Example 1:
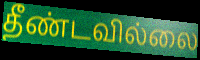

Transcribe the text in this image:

தீண்டவில்லை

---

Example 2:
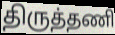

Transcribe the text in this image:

திருத்தணி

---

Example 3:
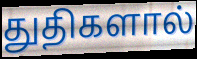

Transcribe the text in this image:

துதிகளால்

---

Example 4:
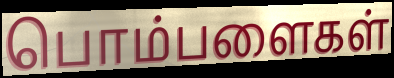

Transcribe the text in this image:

பொம்பளைகள்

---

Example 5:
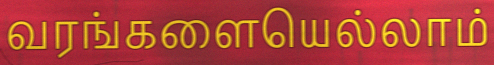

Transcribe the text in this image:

வரங்களையெல்லாம்